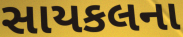
સાયકલના